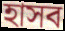
হাসব